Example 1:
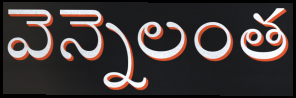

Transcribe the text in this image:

వెన్నెలంత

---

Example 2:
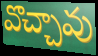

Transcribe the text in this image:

వొచ్చావు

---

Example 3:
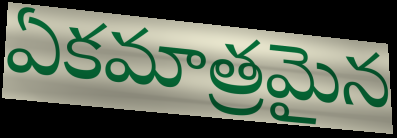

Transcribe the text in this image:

ఏకమాత్రమైన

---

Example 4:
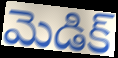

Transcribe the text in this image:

మెడిక్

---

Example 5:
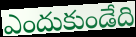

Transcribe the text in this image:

ఎందుకుండేది